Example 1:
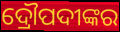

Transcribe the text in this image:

ଦ୍ରୌପଦୀଙ୍କର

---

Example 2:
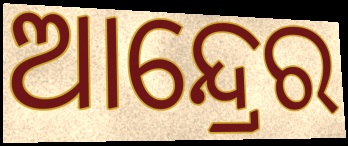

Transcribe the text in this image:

ଆନ୍ଦ୍ରେର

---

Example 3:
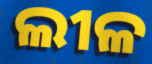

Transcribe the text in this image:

ଲୀଳ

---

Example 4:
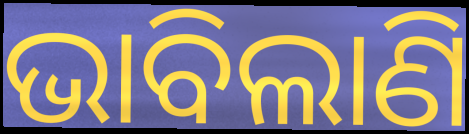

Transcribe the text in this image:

ଭାବିଲାଣି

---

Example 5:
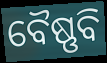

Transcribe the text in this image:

ବୈଷ୍ଣବି